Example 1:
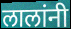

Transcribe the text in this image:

लालांनी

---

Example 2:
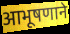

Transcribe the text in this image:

आभूषणाने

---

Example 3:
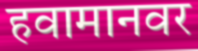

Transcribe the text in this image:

हवामानवर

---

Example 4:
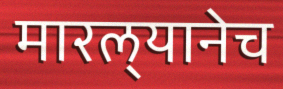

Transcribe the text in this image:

मारल्यानेच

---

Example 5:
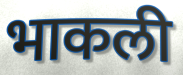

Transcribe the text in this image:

भाकली